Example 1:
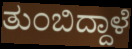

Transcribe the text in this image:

ತುಂಬಿದ್ದಾಳೆ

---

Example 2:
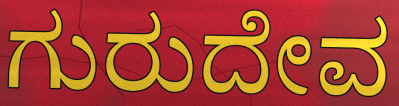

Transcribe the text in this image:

ಗುರುದೇವ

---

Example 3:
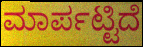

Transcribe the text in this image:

ಮಾರ್ಪಟ್ಟಿದೆ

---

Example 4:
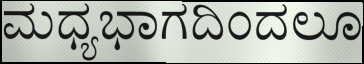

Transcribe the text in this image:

ಮಧ್ಯಭಾಗದಿಂದಲೂ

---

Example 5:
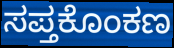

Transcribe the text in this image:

ಸಪ್ತಕೊಂಕಣ